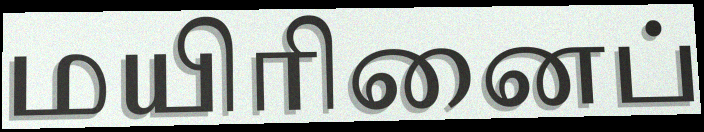
மயிரினைப்